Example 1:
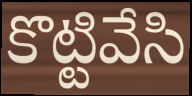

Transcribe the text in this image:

కొట్టివేసి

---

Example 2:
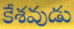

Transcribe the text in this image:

కేశవుడు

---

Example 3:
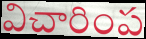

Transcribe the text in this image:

విచారింప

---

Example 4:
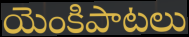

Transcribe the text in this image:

యెంకిపాటలు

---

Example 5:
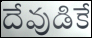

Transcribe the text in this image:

దేవుడికే